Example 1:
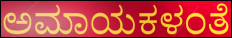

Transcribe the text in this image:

ಅಮಾಯಕಳಂತೆ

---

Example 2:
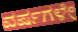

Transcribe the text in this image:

ವರ್ಷಗಳೇ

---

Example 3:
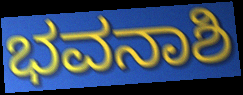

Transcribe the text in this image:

ಭವನಾಶಿ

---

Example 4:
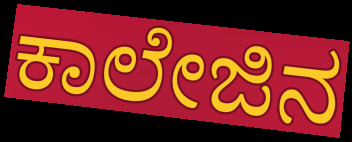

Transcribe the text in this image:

ಕಾಲೇಜಿನ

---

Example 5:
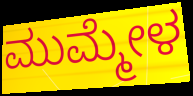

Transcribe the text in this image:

ಮುಮ್ಮೇಳ